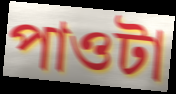
পাওটা